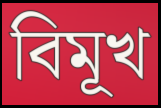
বিমূখ